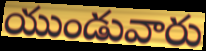
యుండువారు